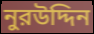
নুরউদ্দিন